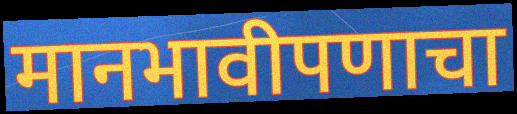
मानभावीपणाचा